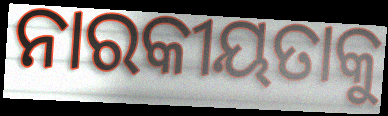
ନାରକୀୟତାକୁ